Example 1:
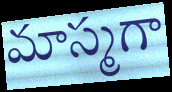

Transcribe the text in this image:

మాస్మగా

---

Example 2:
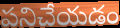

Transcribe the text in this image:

పనిచేయడం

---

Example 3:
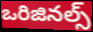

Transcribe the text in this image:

ఒరిజినల్స్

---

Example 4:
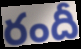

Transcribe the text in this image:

రందీ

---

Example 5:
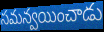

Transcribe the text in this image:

సమన్వయించాడు